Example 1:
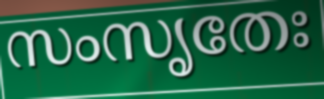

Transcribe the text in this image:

സംസൃതേഃ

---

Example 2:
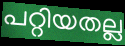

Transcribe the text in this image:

പറ്റിയതല്ല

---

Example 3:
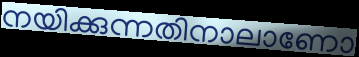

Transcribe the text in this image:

നയിക്കുന്നതിനാലാണോ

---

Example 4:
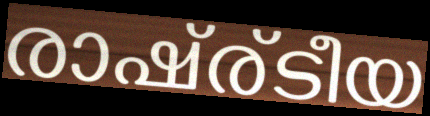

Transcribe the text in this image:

രാഷ്ര്ടീയ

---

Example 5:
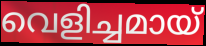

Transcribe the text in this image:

വെളിച്ചമായ്